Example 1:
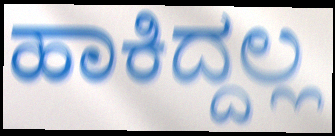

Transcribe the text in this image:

ಹಾಕಿದ್ದಲ್ಲ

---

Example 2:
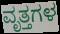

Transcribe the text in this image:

ವೃತ್ತಗಳ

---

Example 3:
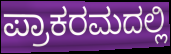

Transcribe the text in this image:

ಪ್ರಾಕರಮದಲ್ಲಿ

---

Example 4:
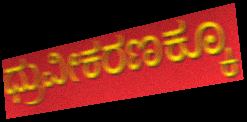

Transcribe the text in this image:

ಧ್ರುವೀಕರಣಕ್ಕೂ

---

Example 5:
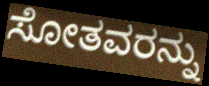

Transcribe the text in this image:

ಸೋತವರನ್ನು